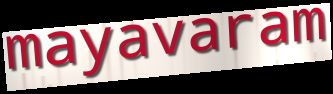
mayavaram